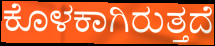
ಕೊಳಕಾಗಿರುತ್ತದೆ